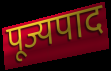
पूज्यपाद